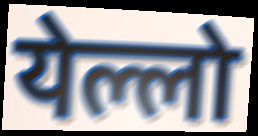
येल्लो